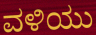
ವಳಿಯು